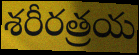
శరీరత్రయ